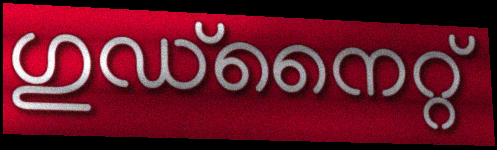
ഗുഡ്നൈറ്റ്